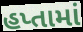
હપ્તામાં